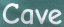
Cave